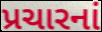
પ્રચારનાં